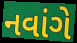
નવાંગે